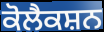
ਕੋਲੈਕਸ਼ਨ